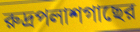
রুদ্রপলাশগাছের